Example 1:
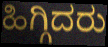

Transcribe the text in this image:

ಹಿಗ್ಗಿದರು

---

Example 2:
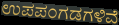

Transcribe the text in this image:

ಉಪಪಂಗಡಗಳಿವೆ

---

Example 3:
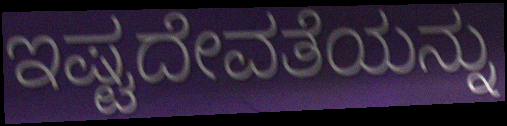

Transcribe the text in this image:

ಇಷ್ಟದೇವತೆಯನ್ನು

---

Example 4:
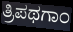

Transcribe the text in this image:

ತ್ರಿಪಥಗಾಂ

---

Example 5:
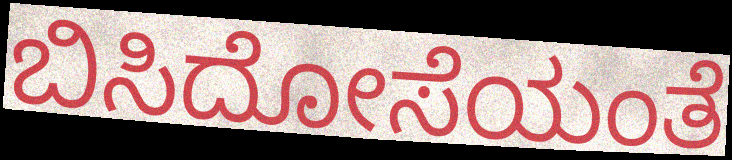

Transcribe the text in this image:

ಬಿಸಿದೋಸೆಯಂತೆ